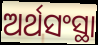
ଅର୍ଥସଂସ୍ଥା